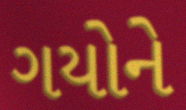
ગયોને